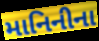
માનિનીના